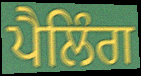
ਪੈਲਿੰਗ